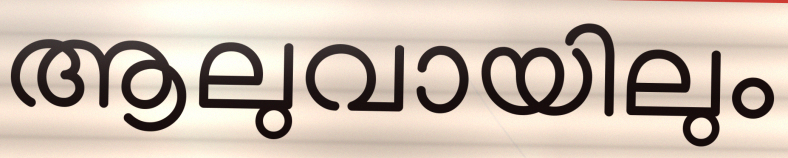
ആലുവായിലും